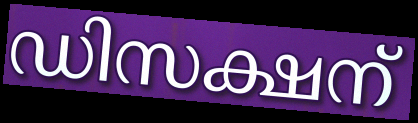
ഡിസക്ഷന്